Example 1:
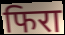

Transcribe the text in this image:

फिरा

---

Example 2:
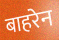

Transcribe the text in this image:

बाहरेन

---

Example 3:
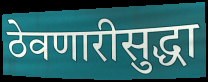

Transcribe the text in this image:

ठेवणारीसुद्धा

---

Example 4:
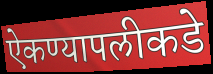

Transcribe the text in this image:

ऐकण्यापलीकडे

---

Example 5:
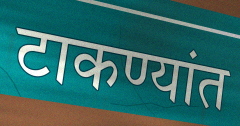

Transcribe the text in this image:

टाकण्यांत